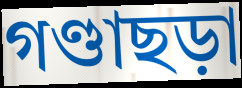
গণ্ডাছড়া